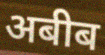
अबीब